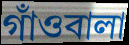
গাঁওবালা